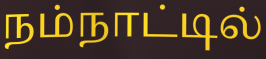
நம்நாட்டில்